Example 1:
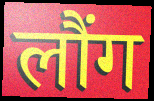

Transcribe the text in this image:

लौंग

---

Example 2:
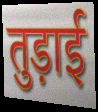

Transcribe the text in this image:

तुड़ाई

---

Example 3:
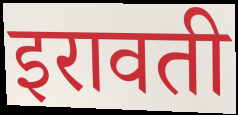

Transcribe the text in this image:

इरावती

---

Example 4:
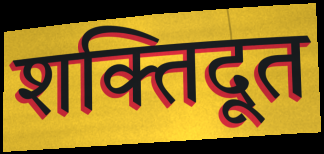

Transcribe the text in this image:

शक्तिदूत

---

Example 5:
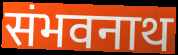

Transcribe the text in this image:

संभवनाथ